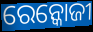
ରେନ୍କୋଜୀ